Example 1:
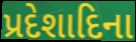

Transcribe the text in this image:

પ્રદેશાદિના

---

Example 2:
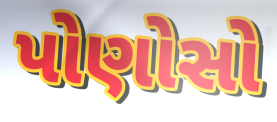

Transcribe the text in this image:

પોણોસો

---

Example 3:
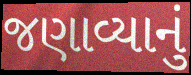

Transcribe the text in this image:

જણાવ્યાનું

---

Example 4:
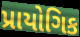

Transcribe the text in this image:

પ્રાયોગિક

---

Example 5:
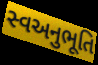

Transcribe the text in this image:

સ્વઅનુભૂતિ